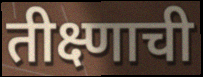
तीक्ष्णाची